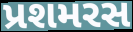
પ્રશમરસ